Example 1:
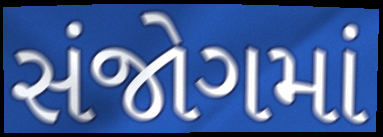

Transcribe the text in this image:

સંજોગમાં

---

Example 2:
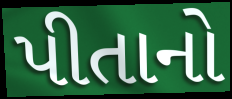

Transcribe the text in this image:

પીતાનો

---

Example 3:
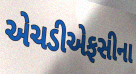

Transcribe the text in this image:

એચડીએફસીના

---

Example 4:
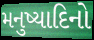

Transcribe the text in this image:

મનુષ્યાદિનો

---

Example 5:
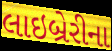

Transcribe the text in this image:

લાઇબ્રેરીના